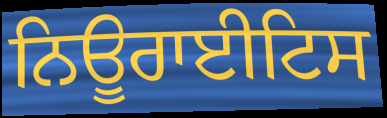
ਨਿਊਰਾਈਟਿਸ